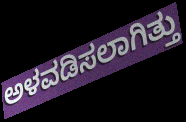
ಅಳವಡಿಸಲಾಗಿತ್ತು